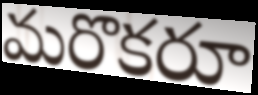
మరొకరూ